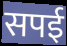
सपई